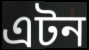
এটন